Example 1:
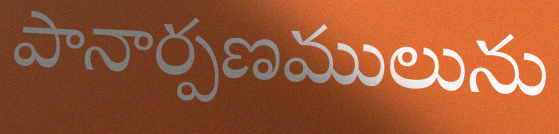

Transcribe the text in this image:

పానార్పణములును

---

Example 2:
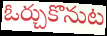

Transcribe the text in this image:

ఓర్చుకొనుట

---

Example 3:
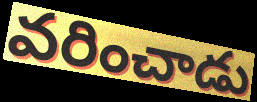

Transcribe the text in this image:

వరించాడు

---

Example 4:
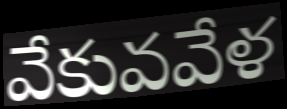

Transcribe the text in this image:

వేకువవేళ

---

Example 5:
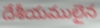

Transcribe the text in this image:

దేశీయములైన